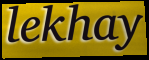
lekhay